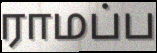
ராமப்ப